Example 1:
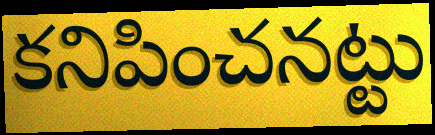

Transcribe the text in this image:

కనిపించనట్టు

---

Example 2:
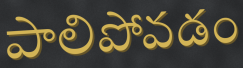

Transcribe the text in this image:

పాలిపోవడం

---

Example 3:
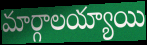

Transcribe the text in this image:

మార్గాలయ్యాయి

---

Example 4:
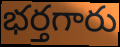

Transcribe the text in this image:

భర్తగారు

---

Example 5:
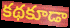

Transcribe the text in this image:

కథకూడా